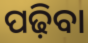
ପଢ଼ିବା